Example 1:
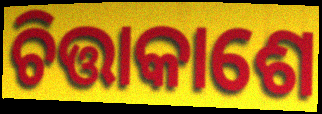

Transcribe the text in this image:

ଚିତ୍ତାକାଶେ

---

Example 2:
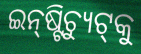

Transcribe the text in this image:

ଇନ୍‌ଷ୍ଟିଚ୍ୟୁଟ୍‌କୁ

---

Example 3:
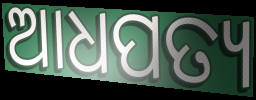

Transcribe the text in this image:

ଆଧପତ୍ୟ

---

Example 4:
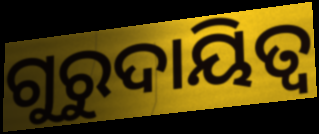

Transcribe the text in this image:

ଗୁରୁଦାୟିତ୍ୱ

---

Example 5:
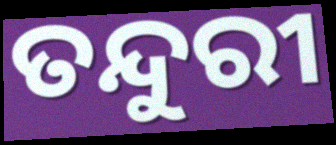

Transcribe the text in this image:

ତନ୍ଦୁରୀ